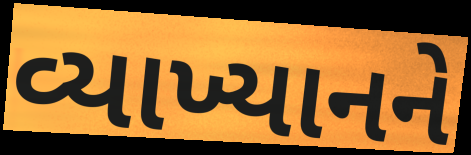
વ્યાખ્યાનને